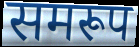
समरूप